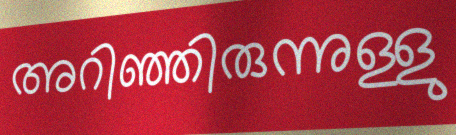
അറിഞ്ഞിരുന്നുള്ളു